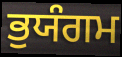
ਭੁਯੰਗਮ